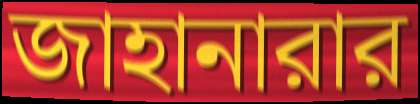
জাহানারার